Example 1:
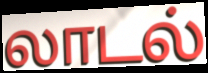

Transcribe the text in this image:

லாடல்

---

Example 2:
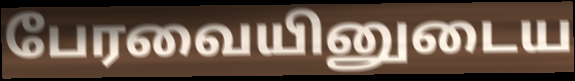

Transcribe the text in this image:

பேரவையினுடைய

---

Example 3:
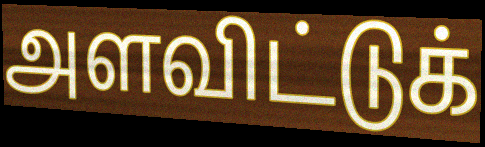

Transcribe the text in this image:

அளவிட்டுக்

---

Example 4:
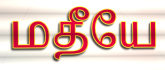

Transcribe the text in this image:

மதீயே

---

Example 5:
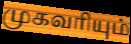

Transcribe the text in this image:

முகவரியும்